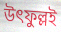
উৎফুল্লই